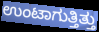
ಉಂಟಾಗುತ್ತಿತ್ತು